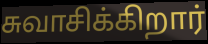
சுவாசிக்கிறார்